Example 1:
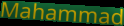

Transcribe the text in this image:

Mahammad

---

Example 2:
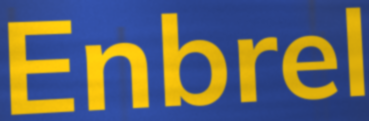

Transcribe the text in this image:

Enbrel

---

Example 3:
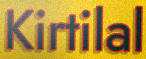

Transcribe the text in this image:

Kirtilal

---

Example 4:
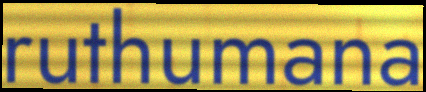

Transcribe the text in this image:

ruthumana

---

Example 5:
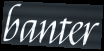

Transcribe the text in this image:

banter